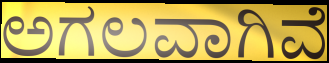
ಅಗಲವಾಗಿವೆ